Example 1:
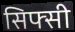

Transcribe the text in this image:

सिफ्सी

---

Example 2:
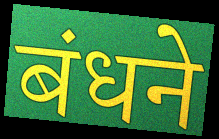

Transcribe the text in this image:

बंधने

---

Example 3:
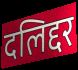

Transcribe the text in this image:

दलिद्दर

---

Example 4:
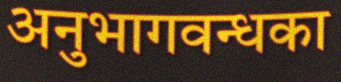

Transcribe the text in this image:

अनुभागवन्धका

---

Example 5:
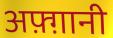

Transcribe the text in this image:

अफ़्ग़ानी